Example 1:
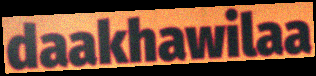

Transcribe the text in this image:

daakhawilaa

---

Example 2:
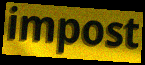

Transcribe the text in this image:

impost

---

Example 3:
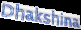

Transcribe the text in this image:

Dhakshina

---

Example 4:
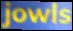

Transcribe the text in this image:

jowls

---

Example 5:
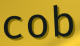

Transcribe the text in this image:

cob